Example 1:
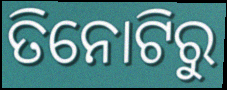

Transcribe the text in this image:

ତିନୋଟିରୁ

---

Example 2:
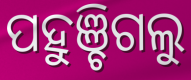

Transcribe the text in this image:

ପହୁଞ୍ଚିଗଲୁ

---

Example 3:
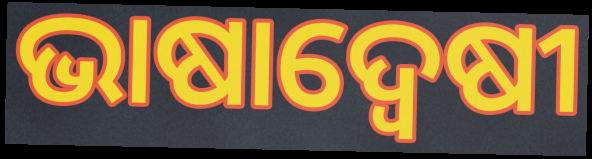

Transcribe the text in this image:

ଭାଷାଦ୍ଵେଷୀ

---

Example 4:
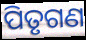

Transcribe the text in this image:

ପିତୃଗଣ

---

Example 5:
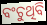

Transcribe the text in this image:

ବଂଚୁଥିବି